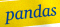
pandas